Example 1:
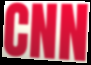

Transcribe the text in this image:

CNN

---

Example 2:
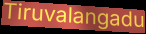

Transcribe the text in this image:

Tiruvalangadu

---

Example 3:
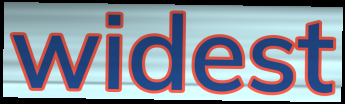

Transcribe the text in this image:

widest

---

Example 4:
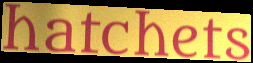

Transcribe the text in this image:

hatchets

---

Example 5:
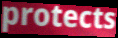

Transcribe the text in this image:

protects